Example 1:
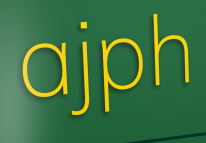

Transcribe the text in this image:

ajph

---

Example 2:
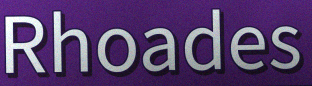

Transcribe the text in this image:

Rhoades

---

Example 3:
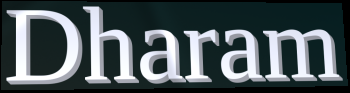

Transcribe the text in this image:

Dharam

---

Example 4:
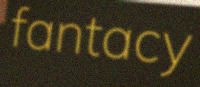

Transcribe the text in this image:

fantacy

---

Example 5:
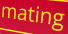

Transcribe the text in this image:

mating